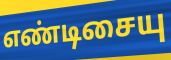
எண்டிசையு